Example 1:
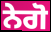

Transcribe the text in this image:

ਨੇਗੋ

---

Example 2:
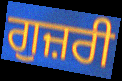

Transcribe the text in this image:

ਗੁਜ਼ਰੀ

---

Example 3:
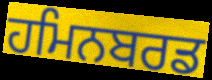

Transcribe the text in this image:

ਹਮਿਨਬਰਡ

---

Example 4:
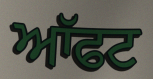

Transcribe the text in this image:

ਆੱਫਟ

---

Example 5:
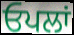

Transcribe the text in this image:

ਓਪਲਾਂ